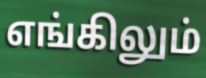
எங்கிலும்